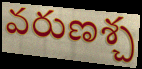
వరుణశ్చ